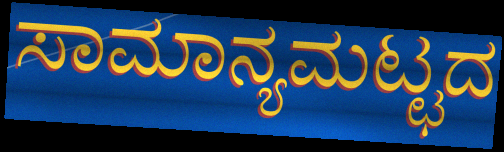
ಸಾಮಾನ್ಯಮಟ್ಟದ